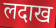
लदाख